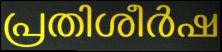
പ്രതിശീർഷ